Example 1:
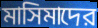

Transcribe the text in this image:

মাসিমাদের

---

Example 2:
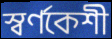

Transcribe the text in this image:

স্বর্ণকেশী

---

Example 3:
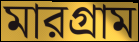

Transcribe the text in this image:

মারগ্রাম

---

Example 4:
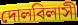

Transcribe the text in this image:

দোলবিলাসী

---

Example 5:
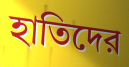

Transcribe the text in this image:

হাতিদের